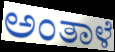
ಅಂತಾಳೆ